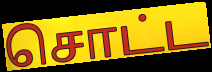
சொட்ட